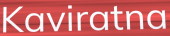
Kaviratna